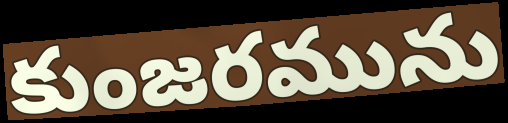
కుంజరమును